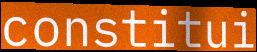
constitui